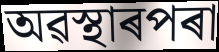
অৱস্থাৰপৰা